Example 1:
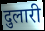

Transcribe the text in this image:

दुलारी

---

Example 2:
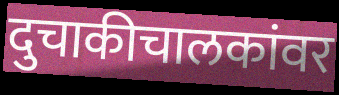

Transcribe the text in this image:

दुचाकीचालकांवर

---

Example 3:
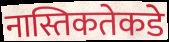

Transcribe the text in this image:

नास्तिकतेकडे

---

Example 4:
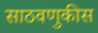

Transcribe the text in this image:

साठवणुकीस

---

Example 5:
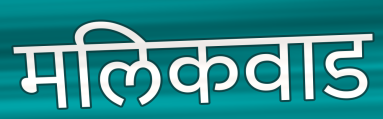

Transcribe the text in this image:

मलिकवाड